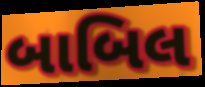
બાબિલ